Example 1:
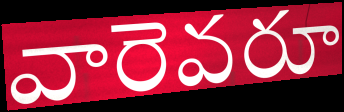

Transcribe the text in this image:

వారెవరూ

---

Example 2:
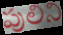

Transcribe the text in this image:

పులిని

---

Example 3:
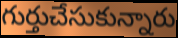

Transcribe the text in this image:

గుర్తుచేసుకున్నారు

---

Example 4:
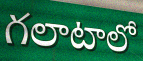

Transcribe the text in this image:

గలాటాలో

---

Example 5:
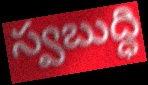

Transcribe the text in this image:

స్వబుద్ధి